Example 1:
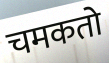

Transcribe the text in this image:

चमकतो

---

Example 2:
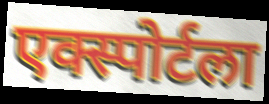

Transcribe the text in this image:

एक्स्पोर्टला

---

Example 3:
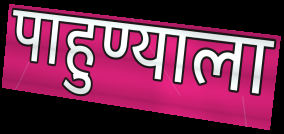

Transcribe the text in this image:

पाहुण्याला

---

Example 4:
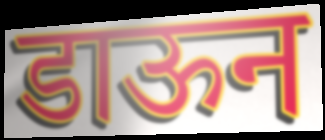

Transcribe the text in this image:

डाऊन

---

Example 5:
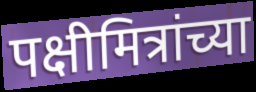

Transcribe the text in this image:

पक्षीमित्रांच्या